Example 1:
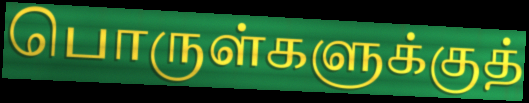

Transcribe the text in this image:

பொருள்களுக்குத்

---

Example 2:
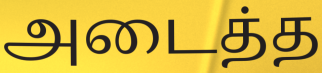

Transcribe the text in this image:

அடைத்த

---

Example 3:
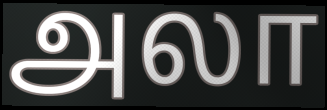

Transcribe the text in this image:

அலா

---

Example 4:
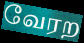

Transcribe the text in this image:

வேரற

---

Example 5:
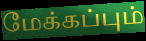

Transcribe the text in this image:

மேக்கப்பும்